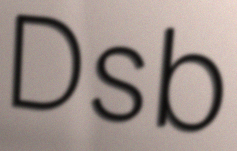
Dsb